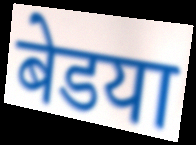
बेडया